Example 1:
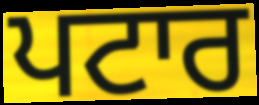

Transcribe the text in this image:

ਪਟਾਰ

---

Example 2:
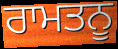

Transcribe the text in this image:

ਰਾਮਤਨੂ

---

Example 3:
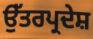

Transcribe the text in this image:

ਉੱਤਰਪ੍ਰਦੇਸ਼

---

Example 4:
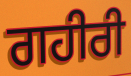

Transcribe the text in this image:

ਗਹੀਰੀ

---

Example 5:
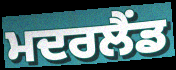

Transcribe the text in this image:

ਮਦਰਲੈਂਡ